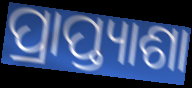
ପ୍ରାପ୍ତ୍ୟାଶା